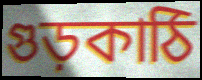
গুড়কাঠি